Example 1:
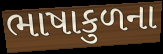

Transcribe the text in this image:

ભાષાકુળના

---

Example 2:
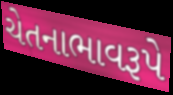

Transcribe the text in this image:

ચેતનાભાવરૂપે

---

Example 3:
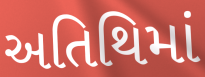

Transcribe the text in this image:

અતિથિમાં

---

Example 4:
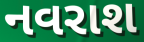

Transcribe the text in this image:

નવરાશ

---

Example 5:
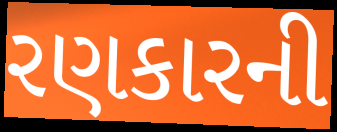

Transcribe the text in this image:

રણકારની